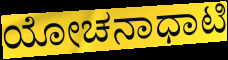
ಯೋಚನಾಧಾಟಿ